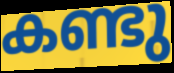
കണ്ടു